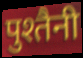
पुश्तैनी